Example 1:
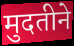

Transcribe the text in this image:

मुदतीने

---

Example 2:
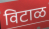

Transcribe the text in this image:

विटाळ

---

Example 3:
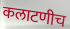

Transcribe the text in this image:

कलाटणीच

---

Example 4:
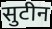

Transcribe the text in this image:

सुटीन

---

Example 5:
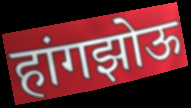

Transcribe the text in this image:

हांगझोऊ